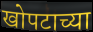
खोपटाच्या